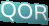
QOR